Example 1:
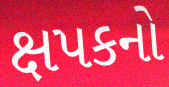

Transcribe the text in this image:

ક્ષપકનો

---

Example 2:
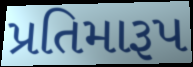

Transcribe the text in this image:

પ્રતિમારૂપ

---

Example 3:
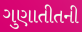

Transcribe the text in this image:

ગુણાતીતની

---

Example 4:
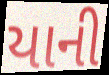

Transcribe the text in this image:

યાની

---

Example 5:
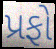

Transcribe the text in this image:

પ્રફો